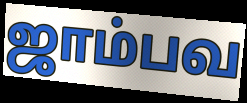
ஜாம்பவ